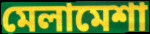
মেলামেশা